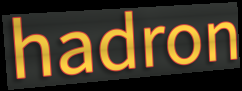
hadron